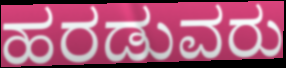
ಹರಡುವರು